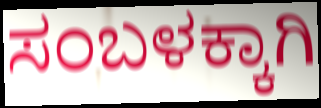
ಸಂಬಳಕ್ಕಾಗಿ